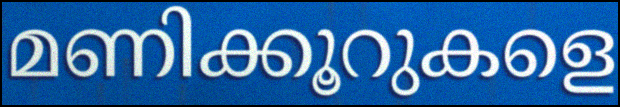
മണിക്കൂറുകളെ